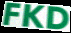
FKD